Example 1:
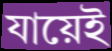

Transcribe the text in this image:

যায়েই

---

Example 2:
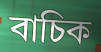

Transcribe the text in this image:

বাচিক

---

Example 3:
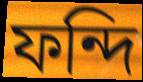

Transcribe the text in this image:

ফন্দি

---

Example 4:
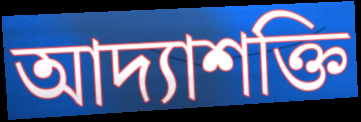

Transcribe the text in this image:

আদ্যাশক্তি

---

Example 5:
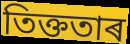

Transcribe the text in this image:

তিক্ততাৰ